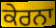
ਕੇਰਨਾ